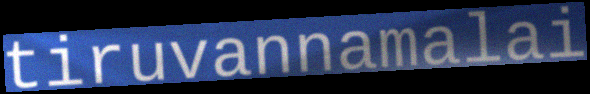
tiruvannamalai